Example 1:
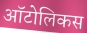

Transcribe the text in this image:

ऑटोलिकस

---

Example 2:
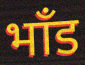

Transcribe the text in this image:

भाँड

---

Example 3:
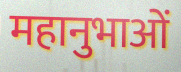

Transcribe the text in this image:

महानुभाओं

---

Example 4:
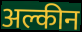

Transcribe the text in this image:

अल्कीन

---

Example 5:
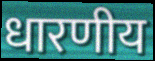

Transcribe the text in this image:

धारणीय